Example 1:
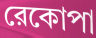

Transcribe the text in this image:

রেকোপা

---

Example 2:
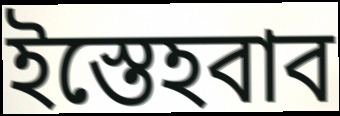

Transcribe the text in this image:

ইস্তেহবাব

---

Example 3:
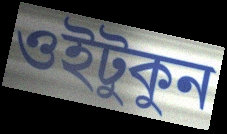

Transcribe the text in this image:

ওইটুকুন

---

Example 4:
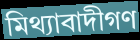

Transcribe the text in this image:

মিথ্যাবাদীগণ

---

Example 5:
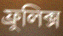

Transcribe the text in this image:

ফ্রুলিক্স